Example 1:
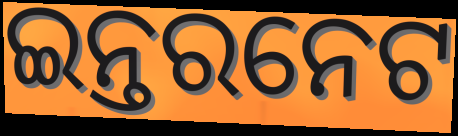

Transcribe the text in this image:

ଇନ୍ତରନେଟ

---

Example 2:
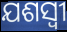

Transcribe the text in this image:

ଯଶସ୍ଵୀ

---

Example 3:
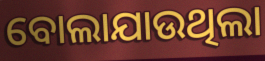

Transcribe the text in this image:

ବୋଲାଯାଉଥିଲା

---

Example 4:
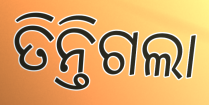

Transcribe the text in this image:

ତିନ୍ତିଗଲା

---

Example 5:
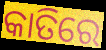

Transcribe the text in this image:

କାତିରେ